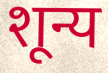
शून्य